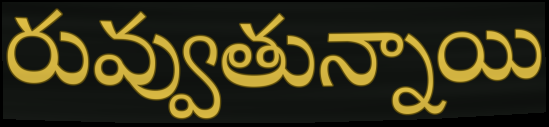
రువ్వుతున్నాయి